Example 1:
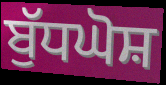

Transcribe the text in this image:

ਬੁੱਧਘੋਸ਼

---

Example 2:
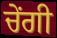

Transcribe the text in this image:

ਚੇਂਗੀ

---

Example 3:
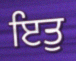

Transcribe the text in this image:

ਇਤੁ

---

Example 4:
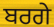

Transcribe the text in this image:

ਬਰਗੇ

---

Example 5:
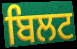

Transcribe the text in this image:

ਬਿਲਟ